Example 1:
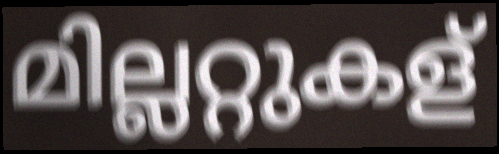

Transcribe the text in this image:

മില്ലറ്റുകള്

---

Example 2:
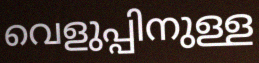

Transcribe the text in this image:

വെളുപ്പിനുള്ള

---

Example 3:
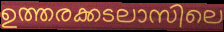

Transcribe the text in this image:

ഉത്തരക്കടലാസിലെ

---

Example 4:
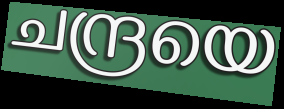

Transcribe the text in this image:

ചന്ദ്രയെ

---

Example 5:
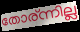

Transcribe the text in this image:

തോര്ന്നില്ല